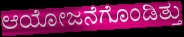
ಆಯೋಜನೆಗೊಂಡಿತ್ತು